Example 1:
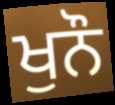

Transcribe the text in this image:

ਖੁਨੌ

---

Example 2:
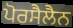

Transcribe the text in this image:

ਪੋਰਸੈਲੈਨ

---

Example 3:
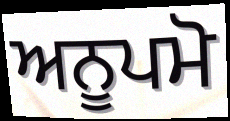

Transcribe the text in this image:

ਅਨੂਪਮੋ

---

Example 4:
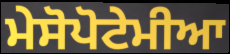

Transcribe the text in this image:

ਮੇਸੋਪੋਟੇਮੀਆ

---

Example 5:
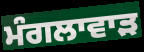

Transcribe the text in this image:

ਮੰਗਲਾਵਾੜ